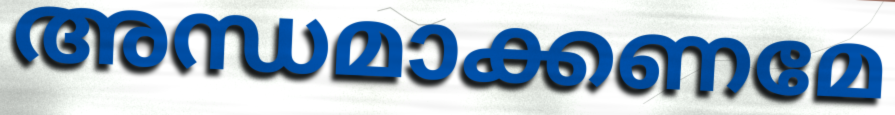
അന്ധമാക്കണമേ